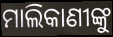
ମାଲିକାଣୀଙ୍କୁ